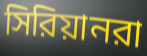
সিরিয়ানরা